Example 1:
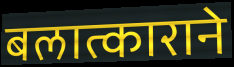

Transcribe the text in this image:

बलात्काराने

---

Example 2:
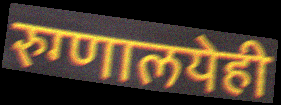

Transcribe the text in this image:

रुग्णालयेही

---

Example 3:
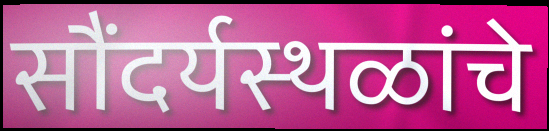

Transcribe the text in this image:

सौंदर्यस्थळांचे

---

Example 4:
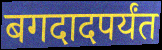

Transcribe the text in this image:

बगदादपर्यंत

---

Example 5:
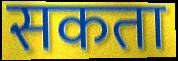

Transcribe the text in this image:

सकता